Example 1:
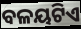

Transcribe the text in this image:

ବଳୟଟିଏ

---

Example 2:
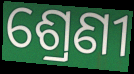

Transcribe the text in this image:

ଶ୍ରେଣୀ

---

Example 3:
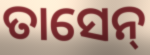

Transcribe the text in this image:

ତାସେନ୍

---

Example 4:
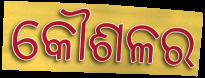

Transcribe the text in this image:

କୌଶଳର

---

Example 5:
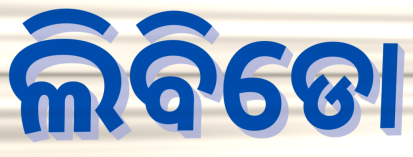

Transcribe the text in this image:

ଲିବିଡୋ